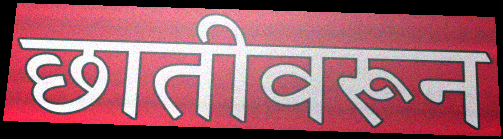
छातीवरून